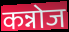
कन्नोज